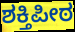
ಶಕ್ತಿಪೀಠ